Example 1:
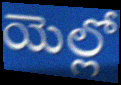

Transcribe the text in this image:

యెల్లో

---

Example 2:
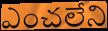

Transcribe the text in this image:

ఎంచలేని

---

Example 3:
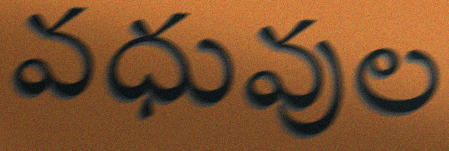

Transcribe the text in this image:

వధువుల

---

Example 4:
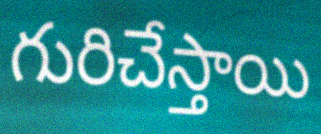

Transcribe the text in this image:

గురిచేస్తాయి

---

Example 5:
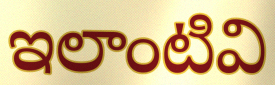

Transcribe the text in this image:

ఇలాంటివి